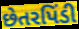
છેતરપિંડી